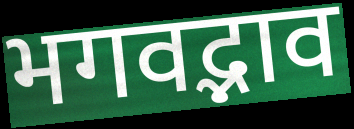
भगवद्भाव